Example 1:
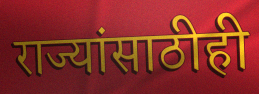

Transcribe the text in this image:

राज्यांसाठीही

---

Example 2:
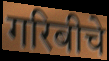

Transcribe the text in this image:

गरिबीचे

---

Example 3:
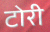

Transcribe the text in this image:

टोरी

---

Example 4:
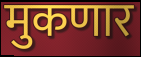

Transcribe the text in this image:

मुकणार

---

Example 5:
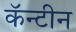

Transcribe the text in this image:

कॅन्टीन